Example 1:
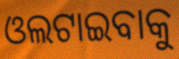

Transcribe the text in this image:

ଓଲଟାଇବାକୁ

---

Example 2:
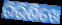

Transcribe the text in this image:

ଗିରିଶିଖେ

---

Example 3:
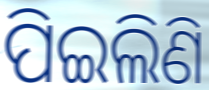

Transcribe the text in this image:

ପିଇଲିଣି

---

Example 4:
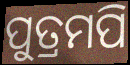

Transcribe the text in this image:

ପୁତ୍ରମପି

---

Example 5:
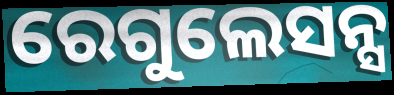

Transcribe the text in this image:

ରେଗୁଲେସନ୍ସ